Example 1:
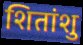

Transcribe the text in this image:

शितांशु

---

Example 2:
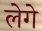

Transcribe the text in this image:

लेगे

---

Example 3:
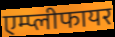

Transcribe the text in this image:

एम्प्लीफायर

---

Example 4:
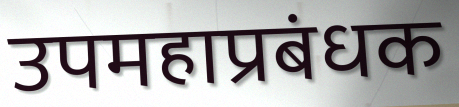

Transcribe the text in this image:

उपमहाप्रबंधक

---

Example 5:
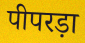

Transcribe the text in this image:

पीपरड़ा